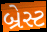
બ્રેસ્ટ